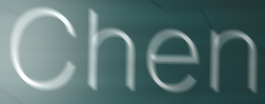
Chen